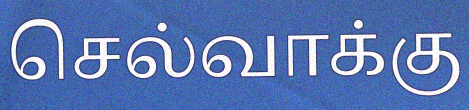
செல்வாக்கு